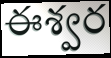
ఈశ్వర